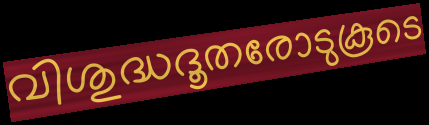
വിശുദ്ധദൂതരോടുകൂടെ